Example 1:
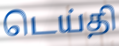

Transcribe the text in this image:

டெய்தி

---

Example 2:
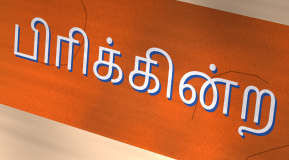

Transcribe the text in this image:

பிரிக்கின்ற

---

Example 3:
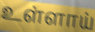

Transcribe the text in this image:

உள்ளாய்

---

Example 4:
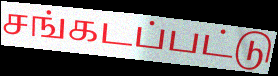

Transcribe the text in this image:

சங்கடப்பட்டு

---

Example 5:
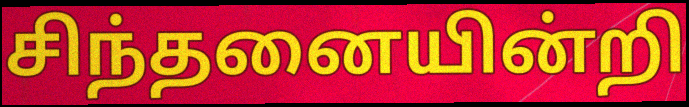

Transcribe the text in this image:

சிந்தனையின்றி